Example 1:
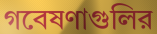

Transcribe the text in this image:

গবেষণাগুলির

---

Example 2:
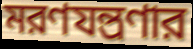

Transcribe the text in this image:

মরণযন্ত্রণার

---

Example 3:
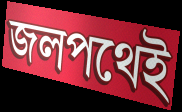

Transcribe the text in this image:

জলপথেই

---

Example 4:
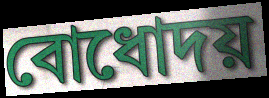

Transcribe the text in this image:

বোধোদয়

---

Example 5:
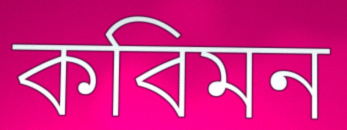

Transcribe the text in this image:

কবিমন